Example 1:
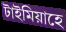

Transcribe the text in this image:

টাইমিয়াহে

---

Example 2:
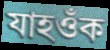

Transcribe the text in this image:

যাহওঁক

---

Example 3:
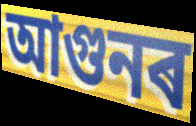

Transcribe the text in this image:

আগুনৰ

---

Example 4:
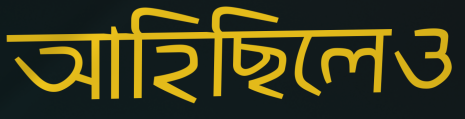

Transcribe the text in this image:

আহিছিলেও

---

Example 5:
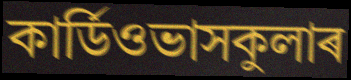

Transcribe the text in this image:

কাৰ্ডিওভাসকুলাৰ